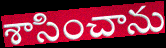
శాసించాను